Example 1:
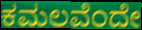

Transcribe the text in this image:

ಕಮಲವೆಂದೇ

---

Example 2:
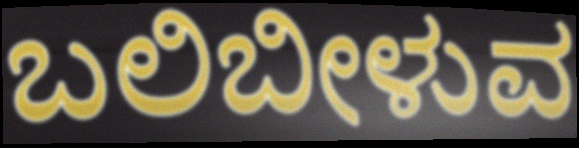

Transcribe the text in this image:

ಬಲಿಬೀಳುವ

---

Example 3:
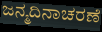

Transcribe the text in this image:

ಜನ್ಮದಿನಾಚರಣೆ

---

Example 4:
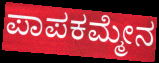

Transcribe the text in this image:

ಪಾಪಕಮ್ಮೇನ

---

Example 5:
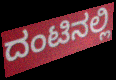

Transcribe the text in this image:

ದಂಟಿನಲ್ಲಿ